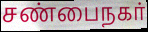
சண்பைநகர்